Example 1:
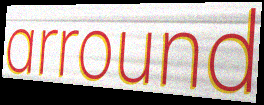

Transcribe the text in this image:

arround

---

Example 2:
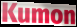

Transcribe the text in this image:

Kumon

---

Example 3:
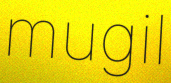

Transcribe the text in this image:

mugil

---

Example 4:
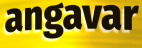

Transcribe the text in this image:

angavar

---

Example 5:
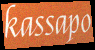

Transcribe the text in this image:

kassapo